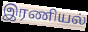
இரணியல்